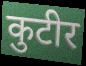
कुटीर